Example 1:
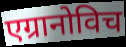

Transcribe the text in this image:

एग्रानोविच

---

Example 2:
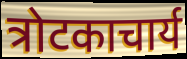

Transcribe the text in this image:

त्रोटकाचार्य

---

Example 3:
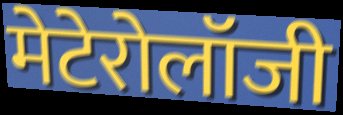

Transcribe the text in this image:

मेटेरोलॉजी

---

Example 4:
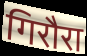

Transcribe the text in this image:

गिरौरा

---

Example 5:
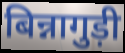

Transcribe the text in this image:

बिन्नागुड़ी